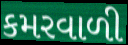
કમરવાળી